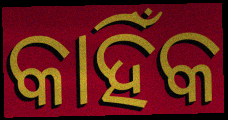
କାହିଁକ